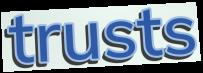
trusts